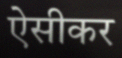
ऐसीकर